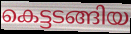
കെട്ടടങ്ങിയ